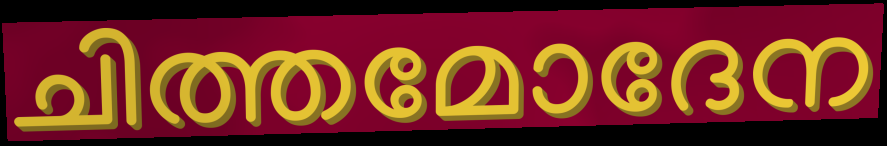
ചിത്തമോദേന